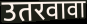
उतरवावा